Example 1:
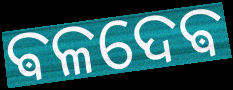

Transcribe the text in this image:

ଵଳଦେଵ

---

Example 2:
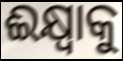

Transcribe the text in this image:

ଈକ୍ଷ୍ୱାକୁ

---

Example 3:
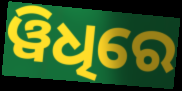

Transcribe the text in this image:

ୱିଧିରେ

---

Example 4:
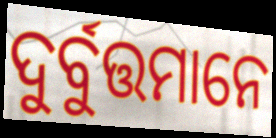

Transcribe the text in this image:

ଦୁର୍ବୁତ୍ତମାନେ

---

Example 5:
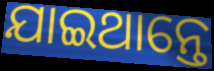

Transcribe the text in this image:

ଯାଇଥାନ୍ତେ